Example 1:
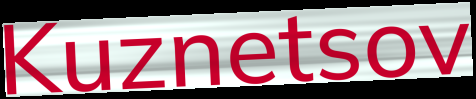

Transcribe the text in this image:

Kuznetsov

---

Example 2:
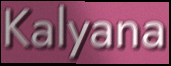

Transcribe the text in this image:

Kalyana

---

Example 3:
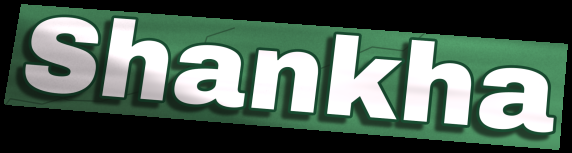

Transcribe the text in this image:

Shankha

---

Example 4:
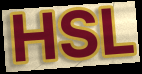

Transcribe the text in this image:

HSL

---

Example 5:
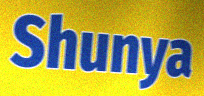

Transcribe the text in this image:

Shunya